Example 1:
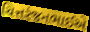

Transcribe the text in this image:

ચિત્તરંજનભાઈએ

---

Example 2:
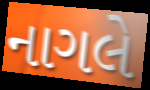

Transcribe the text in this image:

નાગલે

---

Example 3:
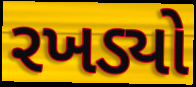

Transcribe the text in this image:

રખડ્યો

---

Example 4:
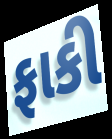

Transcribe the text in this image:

ફાકી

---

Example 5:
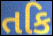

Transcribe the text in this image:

તકિ